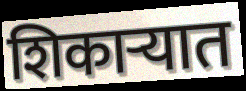
शिकाऱ्यात